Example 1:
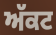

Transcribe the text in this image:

ਅੱਕਟ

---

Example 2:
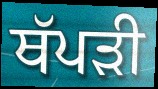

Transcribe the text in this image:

ਥੱਪੜੀ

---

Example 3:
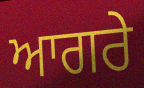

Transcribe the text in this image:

ਆਗਰੇ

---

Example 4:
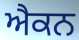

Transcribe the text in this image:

ਐਕਨ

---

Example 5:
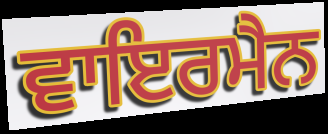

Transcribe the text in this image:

ਵਾਇਰਮੈਨ